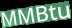
MMBtu